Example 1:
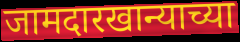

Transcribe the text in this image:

जामदारखान्याच्या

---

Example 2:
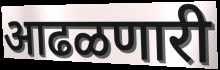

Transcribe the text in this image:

आढळणारी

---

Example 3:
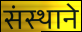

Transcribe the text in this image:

संस्थाने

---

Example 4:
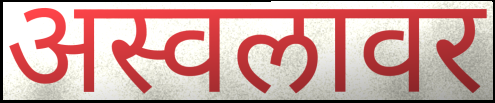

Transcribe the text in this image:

अस्वलावर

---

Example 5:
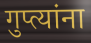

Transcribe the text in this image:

गुप्त्यांना